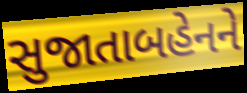
સુજાતાબહેનને